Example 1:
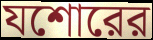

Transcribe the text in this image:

যশোরের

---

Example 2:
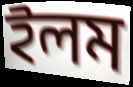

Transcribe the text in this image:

ইলম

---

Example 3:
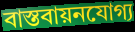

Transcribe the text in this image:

বাস্তবায়নযোগ্য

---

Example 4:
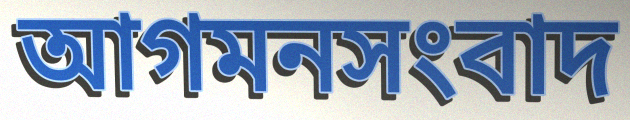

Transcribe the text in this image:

আগমনসংবাদ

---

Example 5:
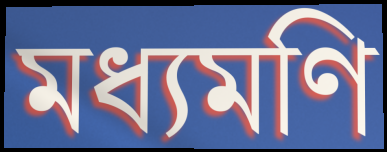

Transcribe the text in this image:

মধ্যমণি